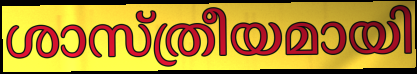
ശാസ്ത്രീയമായി